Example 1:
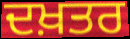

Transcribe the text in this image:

ਦਖ਼ਤਰ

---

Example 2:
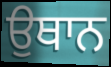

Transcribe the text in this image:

ਉਥਾਨ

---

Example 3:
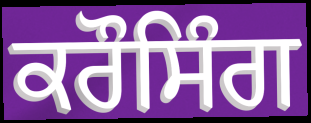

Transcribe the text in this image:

ਕਰੌਸਿੰਗ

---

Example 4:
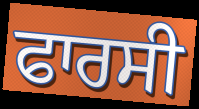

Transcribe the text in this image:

ਫਾਰਸੀ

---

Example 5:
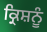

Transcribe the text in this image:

ਕ੍ਰਿਸ਼ਨੂੰ